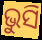
ଭୁସି